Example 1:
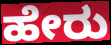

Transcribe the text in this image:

ಹೇರು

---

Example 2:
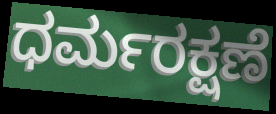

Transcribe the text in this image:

ಧರ್ಮರಕ್ಷಣೆ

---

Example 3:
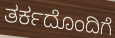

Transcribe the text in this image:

ತರ್ಕದೊಂದಿಗೆ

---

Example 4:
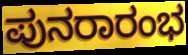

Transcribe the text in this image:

ಪುನರಾರಂಭ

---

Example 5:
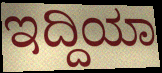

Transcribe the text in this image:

ಇದ್ದಿಯಾ